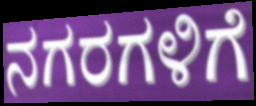
ನಗರಗಳಿಗೆ